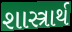
શાસ્ત્રાર્થ